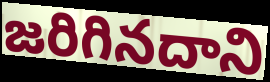
జరిగినదాని